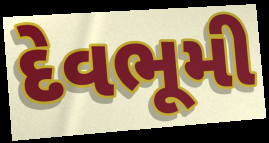
દેવભૂમી